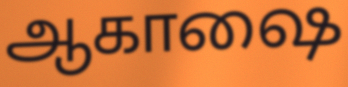
ஆகாஷை